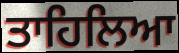
ਤਾਹਿਲਿਆ